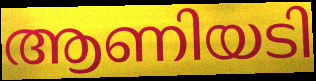
ആണിയടി